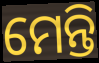
ମେନ୍ତି